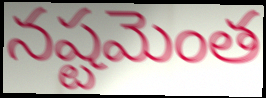
నష్టమెంత